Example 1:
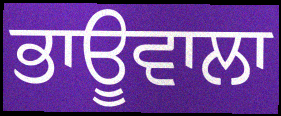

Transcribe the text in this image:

ਭਾਊਵਾਲਾ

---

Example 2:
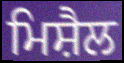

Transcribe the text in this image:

ਮਿਸ਼ੈਲ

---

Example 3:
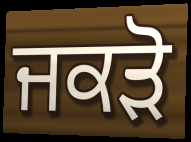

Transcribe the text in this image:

ਜਕੜੋ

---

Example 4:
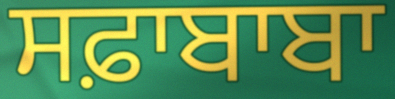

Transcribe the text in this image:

ਸਫ਼ਾਬਾਬਾ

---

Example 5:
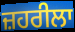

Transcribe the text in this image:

ਜ਼ਹਰੀਲਾ